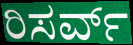
ರಿಸರ್ವ್